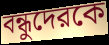
বন্ধুদেরকে